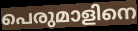
പെരുമാളിനെ